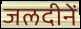
जलदीनें